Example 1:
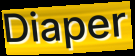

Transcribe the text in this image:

Diaper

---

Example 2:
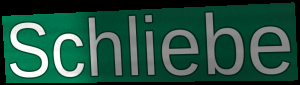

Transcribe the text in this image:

Schliebe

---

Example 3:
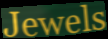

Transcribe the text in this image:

Jewels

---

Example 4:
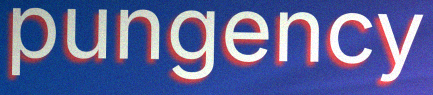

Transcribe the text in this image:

pungency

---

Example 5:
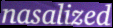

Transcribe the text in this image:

nasalized